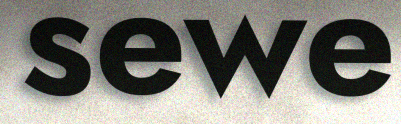
sewe